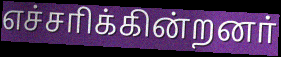
எச்சரிக்கின்றனர்